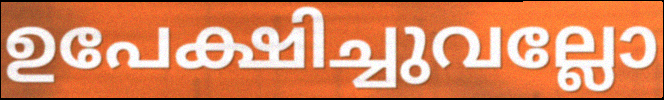
ഉപേക്ഷിച്ചുവല്ലോ